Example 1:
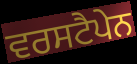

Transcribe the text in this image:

ਵਰਸਟੈਪੇਨ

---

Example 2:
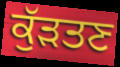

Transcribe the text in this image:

ਕੁੱੜਤਣ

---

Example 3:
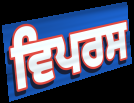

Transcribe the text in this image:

ਵਿਪਰਸ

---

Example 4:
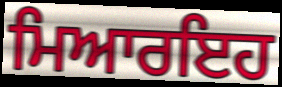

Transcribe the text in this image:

ਮਿਆਰਇਹ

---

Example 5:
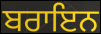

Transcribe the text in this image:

ਬਰਾਇਨ